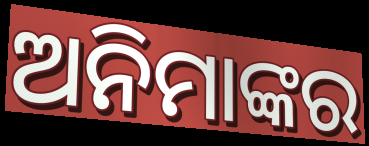
ଅନିମାଙ୍କର